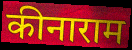
कीनाराम